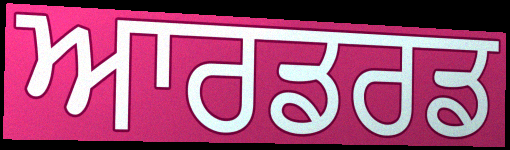
ਆਰਡਰਡ